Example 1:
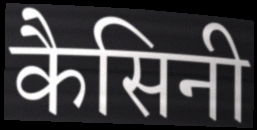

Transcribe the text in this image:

कैसिनी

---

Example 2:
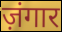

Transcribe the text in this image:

ज़ंगार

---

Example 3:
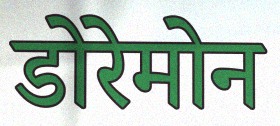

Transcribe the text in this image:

डोरेमोन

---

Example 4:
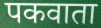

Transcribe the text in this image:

पकवाता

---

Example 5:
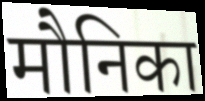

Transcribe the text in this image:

मौनिका